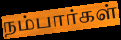
நம்பார்கள்